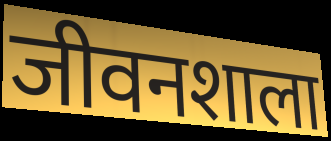
जीवनशाला